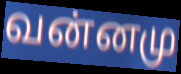
வன்னமு